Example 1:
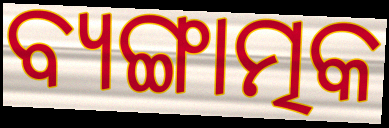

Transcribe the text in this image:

ବ୍ୟଙ୍ଗାତ୍ମକ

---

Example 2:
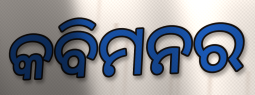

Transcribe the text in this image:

କବିମନର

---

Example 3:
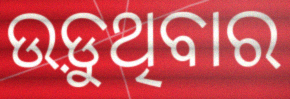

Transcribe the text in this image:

ଉଡ଼ୁଥିବାର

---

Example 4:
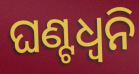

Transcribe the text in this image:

ଘଣ୍ଟଧ୍ୱନି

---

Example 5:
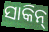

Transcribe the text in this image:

ସାକିନ୍